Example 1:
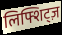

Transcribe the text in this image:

लिफ्शिट्ज़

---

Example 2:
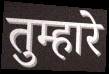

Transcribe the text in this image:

तुम्हारे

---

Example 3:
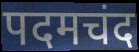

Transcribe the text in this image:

पदमचंद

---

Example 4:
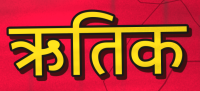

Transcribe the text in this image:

ऋतिक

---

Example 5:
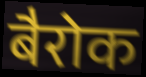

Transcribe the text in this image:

बैरोक